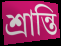
শ্রান্তি